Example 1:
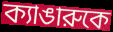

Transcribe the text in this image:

ক্যাঙারুকে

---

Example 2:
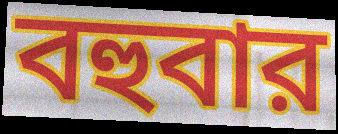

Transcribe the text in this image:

বহুবার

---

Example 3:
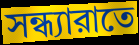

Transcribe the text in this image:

সন্ধ্যারাতে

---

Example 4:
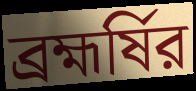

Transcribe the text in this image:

ব্রহ্মর্ষির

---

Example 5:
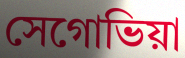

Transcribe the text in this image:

সেগোভিয়া